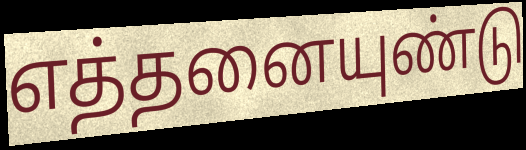
எத்தனையுண்டு